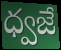
ధ్వజే